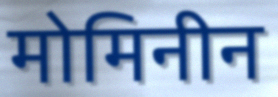
मोमिनीन